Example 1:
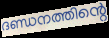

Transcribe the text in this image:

ദണ്ഡനത്തിന്റെ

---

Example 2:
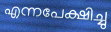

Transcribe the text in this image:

എന്നപേക്ഷിച്ചു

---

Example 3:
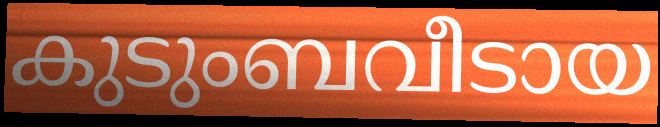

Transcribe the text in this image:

കുടുംബവീടായ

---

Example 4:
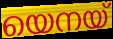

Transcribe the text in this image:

യെനയ്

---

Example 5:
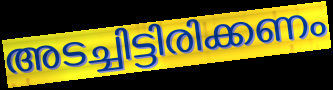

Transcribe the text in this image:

അടച്ചിട്ടിരിക്കണം